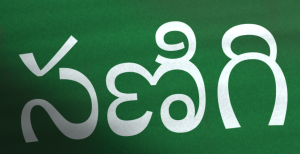
సణిగి